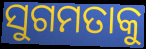
ସୁଗମତାକୁ